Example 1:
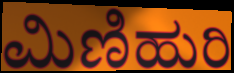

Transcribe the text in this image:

ಮಿಣಿಹುರಿ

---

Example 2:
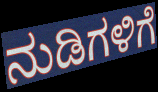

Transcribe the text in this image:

ನುಡಿಗಳಿಗೆ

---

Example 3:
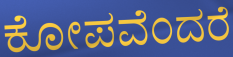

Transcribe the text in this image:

ಕೋಪವೆಂದರೆ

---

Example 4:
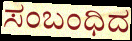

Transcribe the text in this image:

ಸಂಬಂಧಿದ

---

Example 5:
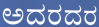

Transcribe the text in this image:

ಅದರದರ